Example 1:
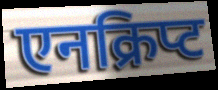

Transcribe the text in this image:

एनक्रिप्ट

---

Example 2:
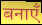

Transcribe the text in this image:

बनाएँ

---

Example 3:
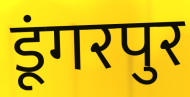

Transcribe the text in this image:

डूंगरपुर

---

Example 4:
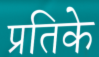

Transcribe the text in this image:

प्रतिके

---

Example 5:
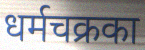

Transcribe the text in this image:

धर्मचक्रका